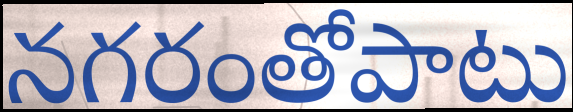
నగరంతోపాటు